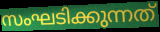
സംഘടിക്കുന്നത്